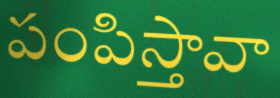
పంపిస్తావా